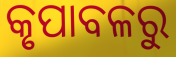
କୃପାବଳରୁ